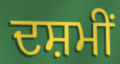
ਦਸ਼ਮੀਂ